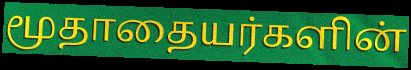
மூதாதையர்களின்